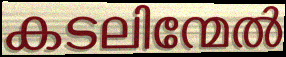
കടലിന്മേൽ